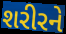
શરીરને